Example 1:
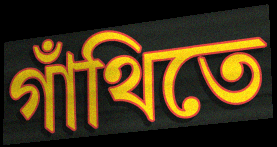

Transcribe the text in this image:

গাঁথিতে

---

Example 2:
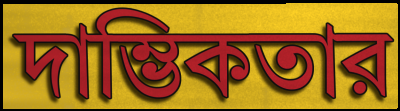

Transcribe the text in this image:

দাম্ভিকতার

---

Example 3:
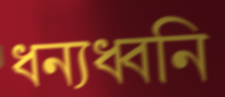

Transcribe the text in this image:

ধন্যধ্বনি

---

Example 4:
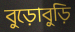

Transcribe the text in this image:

বুড়োবুড়ি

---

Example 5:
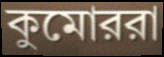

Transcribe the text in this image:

কুমোররা